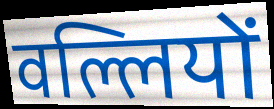
वल्लियों